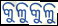
କୁଳୁକୁଳୁ